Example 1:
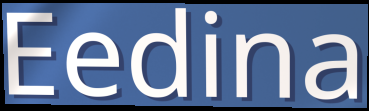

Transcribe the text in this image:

Eedina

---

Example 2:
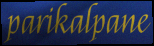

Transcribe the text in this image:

parikalpane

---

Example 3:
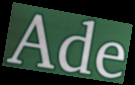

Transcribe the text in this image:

Ade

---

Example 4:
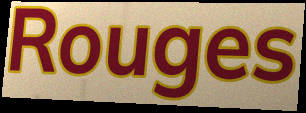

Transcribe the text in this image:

Rouges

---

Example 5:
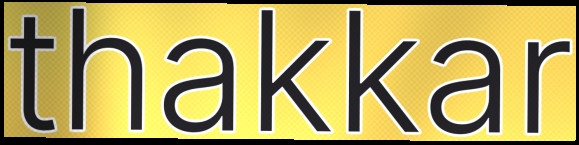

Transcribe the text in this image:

thakkar